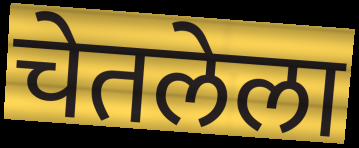
चेतलेला